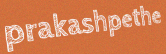
prakashpethe